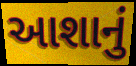
આશાનું